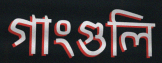
গাংগুলি